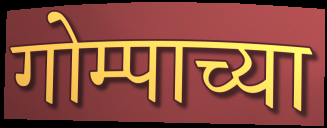
गोम्पाच्या